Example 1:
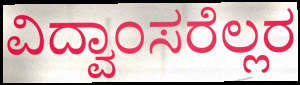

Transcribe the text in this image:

ವಿದ್ವಾಂಸರೆಲ್ಲರ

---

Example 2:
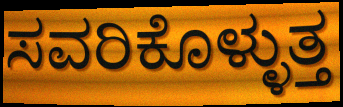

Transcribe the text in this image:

ಸವರಿಕೊಳ್ಳುತ್ತ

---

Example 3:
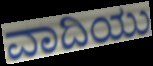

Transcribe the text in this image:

ವಾದಿಯು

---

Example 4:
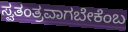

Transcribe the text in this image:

ಸ್ವತಂತ್ರವಾಗಬೇಕೆಂಬ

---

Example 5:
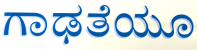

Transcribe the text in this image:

ಗಾಢತೆಯೂ